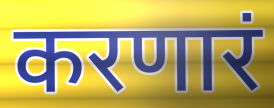
करणारं